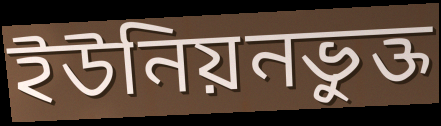
ইউনিয়নভুক্ত